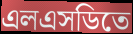
এলএসডিতে